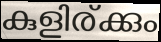
കുളിര്ക്കും